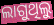
ଲାଗୁଥିଲୁ